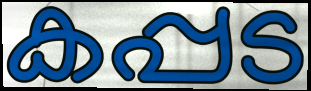
കപ്പട